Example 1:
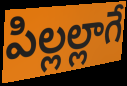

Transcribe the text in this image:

పిల్లల్లాగే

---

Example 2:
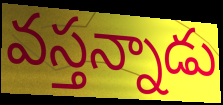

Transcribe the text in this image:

వస్తన్నాడు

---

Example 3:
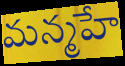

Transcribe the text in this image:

మన్మహే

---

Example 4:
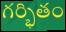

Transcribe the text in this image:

గర్భితం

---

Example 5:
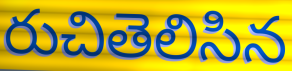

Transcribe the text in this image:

రుచితెలిసిన